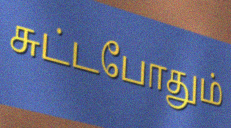
சுட்டபோதும்